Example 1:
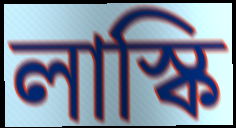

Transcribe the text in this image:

লাস্কি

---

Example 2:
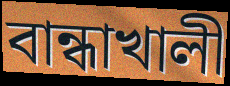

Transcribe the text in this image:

বান্ধাখালী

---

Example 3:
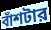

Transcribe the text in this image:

বাঁশটার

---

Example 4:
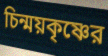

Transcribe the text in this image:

চিন্ময়কৃষ্ণের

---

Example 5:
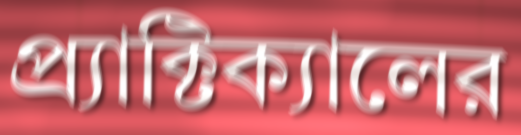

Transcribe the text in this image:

প্র্যাক্টিক্যালের